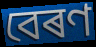
বেৰণ